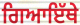
ਗਿਆਇੱਥੇ